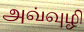
அவ்வுழி